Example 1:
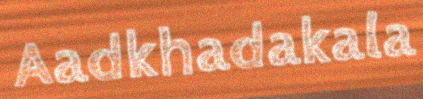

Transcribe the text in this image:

Aadkhadakala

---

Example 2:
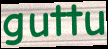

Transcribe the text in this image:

guttu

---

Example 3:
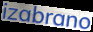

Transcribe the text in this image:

izabrano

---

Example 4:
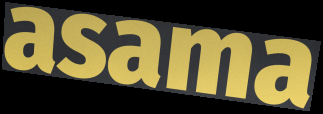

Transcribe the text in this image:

asama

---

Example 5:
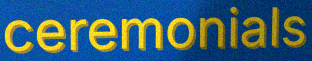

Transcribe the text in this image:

ceremonials